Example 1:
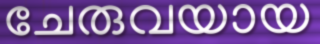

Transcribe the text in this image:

ചേരുവയായ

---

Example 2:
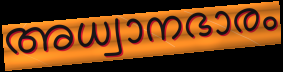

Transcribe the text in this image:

അധ്വാനഭാരം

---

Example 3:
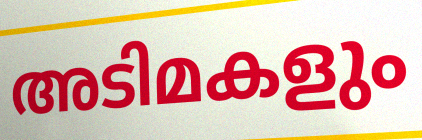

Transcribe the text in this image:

അടിമകളും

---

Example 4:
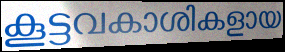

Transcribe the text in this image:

കൂട്ടവകാശികളായ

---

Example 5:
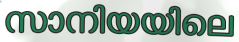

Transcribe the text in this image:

സാനിയയിലെ